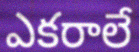
ఎకరాలే